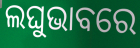
ଲଘୁଭାବରେ